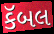
કૅબલ